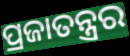
ପ୍ରଜାତନ୍ତ୍ରର